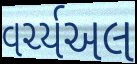
વર્ચ્યઅલ